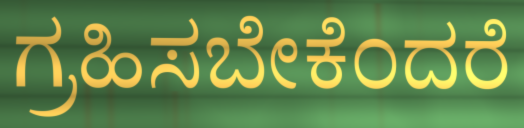
ಗ್ರಹಿಸಬೇಕೆಂದರೆ